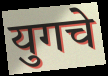
युगचे